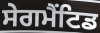
ਸੇਗਮੈਂਟਿਡ